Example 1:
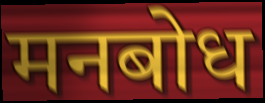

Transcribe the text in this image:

मनबोध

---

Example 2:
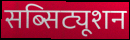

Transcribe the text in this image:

सब्सिट्यूशन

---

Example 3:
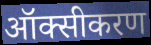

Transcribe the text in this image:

ऑक्सीकरण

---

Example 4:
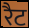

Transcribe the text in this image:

रैट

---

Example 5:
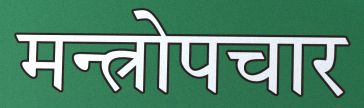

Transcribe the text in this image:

मन्त्रोपचार